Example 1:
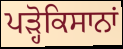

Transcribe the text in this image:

ਪੜ੍ਹੋਕਿਸਾਨਾਂ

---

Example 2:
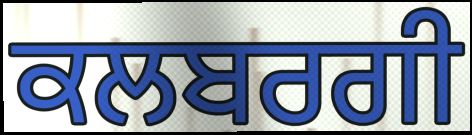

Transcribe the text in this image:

ਕਲਬਰਗੀ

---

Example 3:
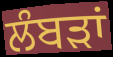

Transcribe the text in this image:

ਲੰਬੜਾਂ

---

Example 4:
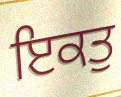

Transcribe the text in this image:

ਇਕਤੁ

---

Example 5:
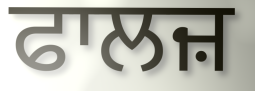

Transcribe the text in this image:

ਫਾਲਜ਼